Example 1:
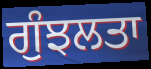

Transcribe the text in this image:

ਗੁੰਝਲਤਾ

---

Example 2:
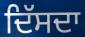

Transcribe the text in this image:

ਦਿੱਸਦਾ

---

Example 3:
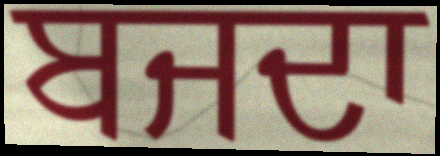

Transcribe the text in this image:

ਬਜਦਾ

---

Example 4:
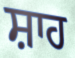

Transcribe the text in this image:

ਸ਼ਾਹ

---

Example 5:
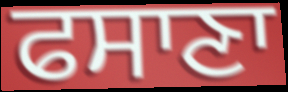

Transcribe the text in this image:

ਫਸਾਣਾ